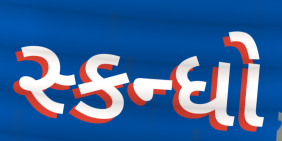
સ્કન્ધો